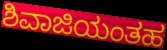
ಶಿವಾಜಿಯಂತಹ